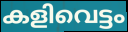
കളിവെട്ടം